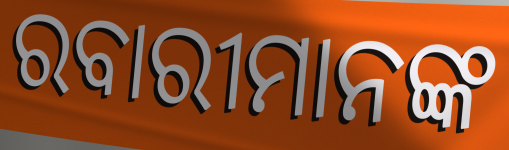
ରବାରୀମାନଙ୍କ